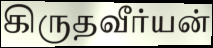
கிருதவீர்யன்